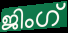
ജിംഗ്